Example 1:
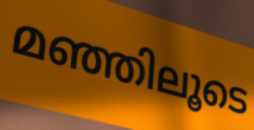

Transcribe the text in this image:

മഞ്ഞിലൂടെ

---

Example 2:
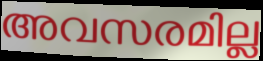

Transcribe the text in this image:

അവസരമില്ല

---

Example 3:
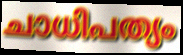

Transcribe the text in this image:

ചാധിപത്യം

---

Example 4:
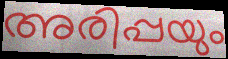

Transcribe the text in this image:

അരിപ്പയും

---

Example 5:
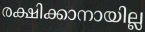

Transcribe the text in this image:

രക്ഷിക്കാനായില്ല